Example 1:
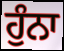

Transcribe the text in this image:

ਹੁੰਨਾ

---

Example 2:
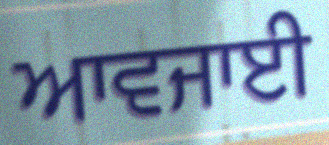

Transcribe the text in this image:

ਆਵਜਾਈ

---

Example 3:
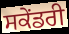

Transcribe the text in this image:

ਸਕੇਂਡਰੀ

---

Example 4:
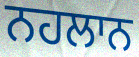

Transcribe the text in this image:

ਨਹਲਾਨ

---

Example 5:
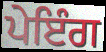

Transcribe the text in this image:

ਪੇਇੰਗ